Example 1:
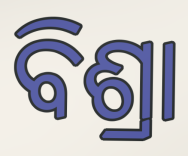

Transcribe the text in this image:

ବିଶ୍ରା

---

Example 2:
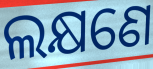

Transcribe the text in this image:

ଲକ୍ଷଣେ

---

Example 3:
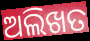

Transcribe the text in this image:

ଅଲିଖତ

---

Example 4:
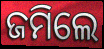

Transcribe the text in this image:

ଜମିଲେ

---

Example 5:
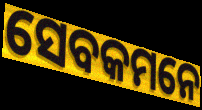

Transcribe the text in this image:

ସେବକମନେ